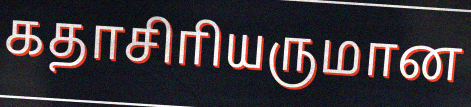
கதாசிரியருமான